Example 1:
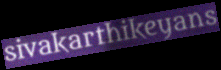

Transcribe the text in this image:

sivakarthikeyans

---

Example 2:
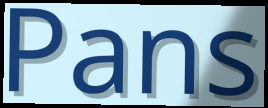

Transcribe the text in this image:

Pans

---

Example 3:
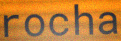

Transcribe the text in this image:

rocha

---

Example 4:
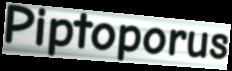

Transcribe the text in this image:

Piptoporus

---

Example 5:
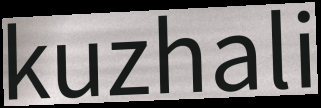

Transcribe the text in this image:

kuzhali